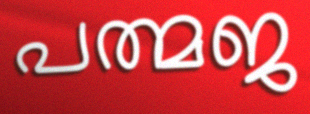
പത്മജ